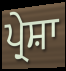
ਪ੍ਰੇਸ਼ਾ